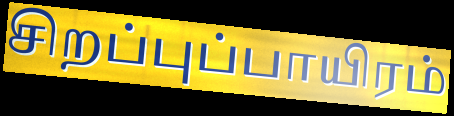
சிறப்புப்பாயிரம்